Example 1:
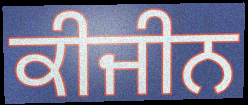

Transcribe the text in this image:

ਕੀਜੀਨ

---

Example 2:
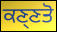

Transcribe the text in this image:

ਕਣ੍ਣਤੋ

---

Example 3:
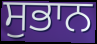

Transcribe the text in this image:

ਸੁਭਾਨ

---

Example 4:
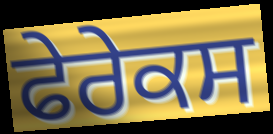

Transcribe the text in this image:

ਫੇਰੇਕਸ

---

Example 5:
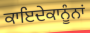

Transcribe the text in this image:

ਕਾਇਦੇਕਾਨੂੰਨਾਂ